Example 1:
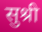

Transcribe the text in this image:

सुश्री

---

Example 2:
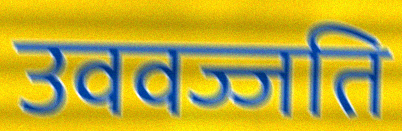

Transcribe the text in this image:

उववज्जति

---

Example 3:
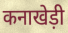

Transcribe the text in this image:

कनाखेड़ी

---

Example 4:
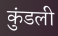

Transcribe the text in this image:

कुंडली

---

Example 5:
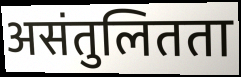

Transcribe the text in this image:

असंतुलितता